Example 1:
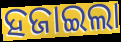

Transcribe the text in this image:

ହଜାଇଲା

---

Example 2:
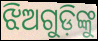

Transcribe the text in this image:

ଝିଅଗୁଡ଼ିଙ୍କୁ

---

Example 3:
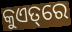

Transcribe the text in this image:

କୁଏତ୍‌ରେ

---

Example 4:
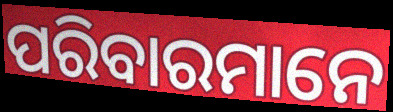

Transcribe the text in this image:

ପରିବାରମାନେ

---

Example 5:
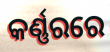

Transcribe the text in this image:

କର୍ଣ୍ଣରରେ